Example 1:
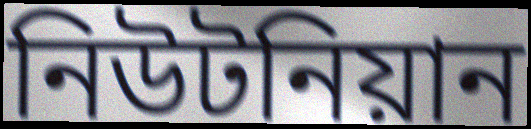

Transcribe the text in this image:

নিউটনিয়ান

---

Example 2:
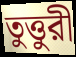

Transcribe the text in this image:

তুত্তুরী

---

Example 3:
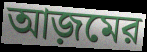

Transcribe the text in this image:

আজ়মের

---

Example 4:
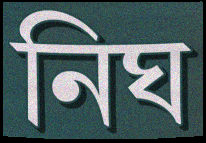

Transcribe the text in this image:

নিঘ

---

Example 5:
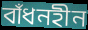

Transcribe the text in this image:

বাঁধনহীন